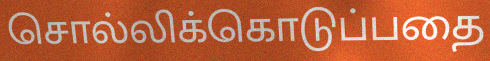
சொல்லிக்கொடுப்பதை